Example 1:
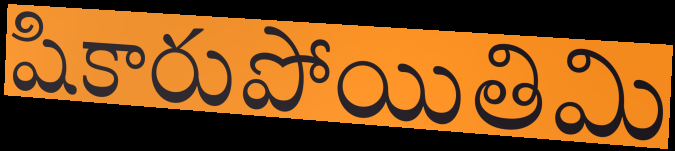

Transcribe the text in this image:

షికారుపోయితిమి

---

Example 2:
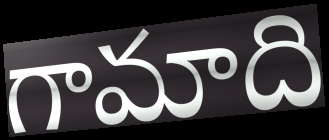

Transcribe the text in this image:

గామాది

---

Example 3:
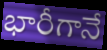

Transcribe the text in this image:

భారీగానే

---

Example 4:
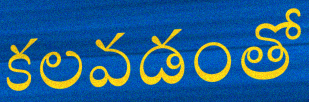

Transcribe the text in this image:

కలవడంతో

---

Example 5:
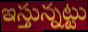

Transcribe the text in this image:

ఇస్తున్నట్టు